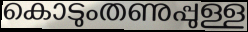
കൊടുംതണുപ്പുള്ള